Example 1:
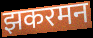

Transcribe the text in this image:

झकरमन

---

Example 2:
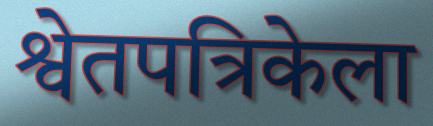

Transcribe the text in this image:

श्वेतपत्रिकेला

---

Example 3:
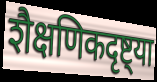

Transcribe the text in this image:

शैक्षणिकदृष्ट्या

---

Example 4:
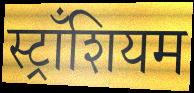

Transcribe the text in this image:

स्ट्राँशियम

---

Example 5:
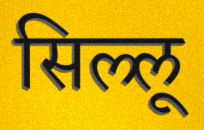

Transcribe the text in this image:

सिल्लू